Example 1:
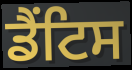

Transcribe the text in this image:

ਡੈਂਟਿਸ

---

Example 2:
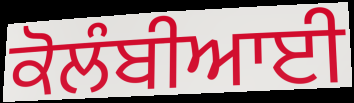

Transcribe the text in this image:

ਕੋਲੰਬੀਆਈ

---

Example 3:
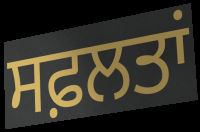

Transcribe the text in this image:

ਸਫ਼ਲਤਾਂ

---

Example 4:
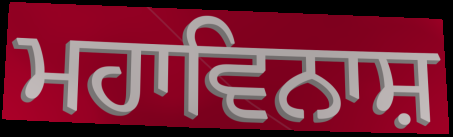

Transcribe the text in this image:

ਮਹਾਵਿਨਾਸ਼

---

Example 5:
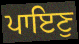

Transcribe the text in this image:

ਪਾਇਣੁ